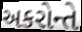
અકરોન્તે